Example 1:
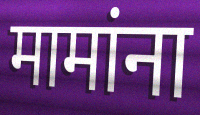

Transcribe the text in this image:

मामांना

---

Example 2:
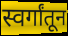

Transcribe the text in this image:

स्वर्गांतून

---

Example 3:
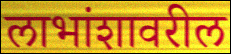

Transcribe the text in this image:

लाभांशावरील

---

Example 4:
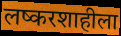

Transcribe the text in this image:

लष्करशाहीला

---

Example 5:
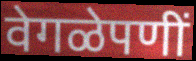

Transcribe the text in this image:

वेगळेपणीं